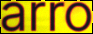
arro